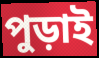
পুড়াই